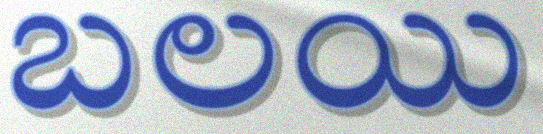
బలయి